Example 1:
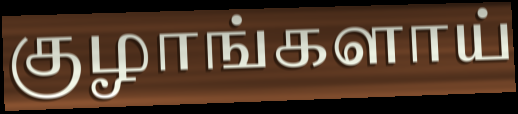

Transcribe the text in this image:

குழாங்களாய்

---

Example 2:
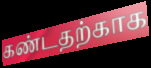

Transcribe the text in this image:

கண்டதற்காக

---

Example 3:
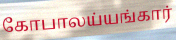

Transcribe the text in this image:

கோபாலய்யங்கார்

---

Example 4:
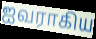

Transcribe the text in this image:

ஐவராகிய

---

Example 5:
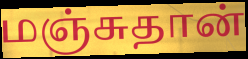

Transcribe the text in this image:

மஞ்சுதான்